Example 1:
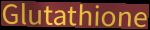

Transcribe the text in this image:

Glutathione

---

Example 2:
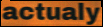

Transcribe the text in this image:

actualy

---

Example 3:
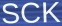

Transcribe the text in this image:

SCK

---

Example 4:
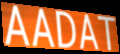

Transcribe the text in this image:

AADAT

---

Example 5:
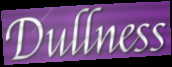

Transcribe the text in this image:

Dullness